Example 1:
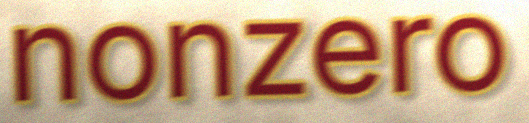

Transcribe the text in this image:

nonzero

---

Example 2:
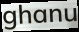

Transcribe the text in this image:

ghanu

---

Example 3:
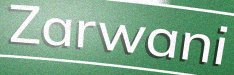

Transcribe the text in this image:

Zarwani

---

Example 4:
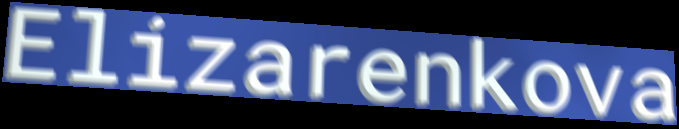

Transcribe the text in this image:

Elizarenkova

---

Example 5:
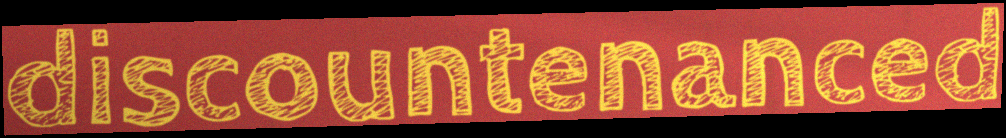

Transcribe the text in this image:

discountenanced